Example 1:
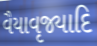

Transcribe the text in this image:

વૈયાવૃજ્યાદિ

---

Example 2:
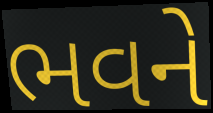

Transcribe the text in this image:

ભવને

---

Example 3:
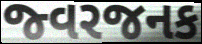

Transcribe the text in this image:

જ્વરજનક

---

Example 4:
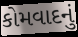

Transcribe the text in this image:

કોમવાદનું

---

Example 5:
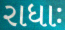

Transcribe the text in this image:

રાધાઃ